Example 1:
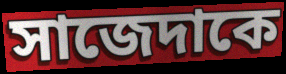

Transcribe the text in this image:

সাজেদাকে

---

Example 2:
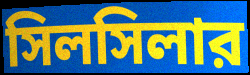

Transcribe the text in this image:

সিলসিলার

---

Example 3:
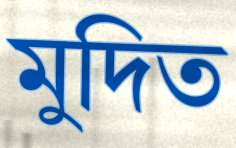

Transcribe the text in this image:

মুদিত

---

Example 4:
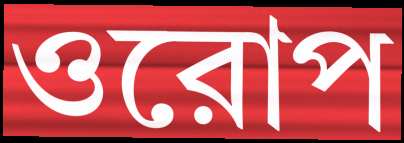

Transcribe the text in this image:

ওরোপ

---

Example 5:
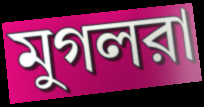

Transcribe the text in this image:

মুগলরা